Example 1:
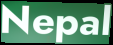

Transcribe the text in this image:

Nepal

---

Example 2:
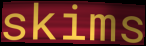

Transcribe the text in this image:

skims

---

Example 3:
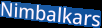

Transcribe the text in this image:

Nimbalkars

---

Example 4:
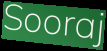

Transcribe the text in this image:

Sooraj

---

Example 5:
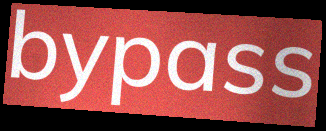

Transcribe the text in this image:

bypass